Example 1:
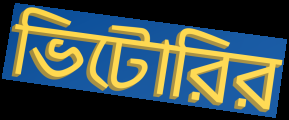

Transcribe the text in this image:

ভিটোরির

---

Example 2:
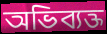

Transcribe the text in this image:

অভিব্যক্ত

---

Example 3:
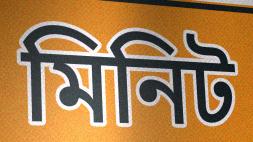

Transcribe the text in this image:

মিনিট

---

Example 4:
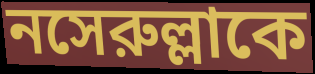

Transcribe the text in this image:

নসেরুল্লাকে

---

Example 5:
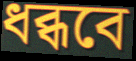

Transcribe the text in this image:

ধব্ধবে